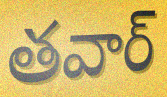
తవార్